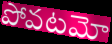
పోవటమో